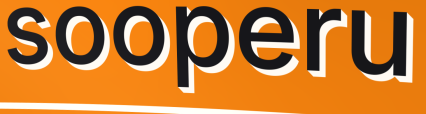
sooperu